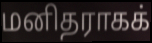
மனிதராகக்